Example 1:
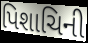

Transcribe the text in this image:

પિશાચિની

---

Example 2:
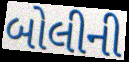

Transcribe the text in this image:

બોલીની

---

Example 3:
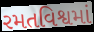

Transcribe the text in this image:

રમતવિશ્વમાં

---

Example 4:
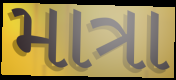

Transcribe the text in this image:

માત્રા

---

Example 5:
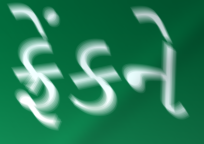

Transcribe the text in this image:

ફ્રેંકને